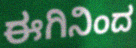
ಈಗಿನಿಂದ